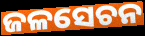
ଜଳସେଚନ